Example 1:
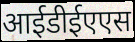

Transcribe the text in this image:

आईडीईएएस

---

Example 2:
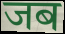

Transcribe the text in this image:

जब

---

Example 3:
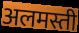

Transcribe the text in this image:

अलमस्ती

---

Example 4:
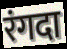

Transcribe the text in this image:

रंगदा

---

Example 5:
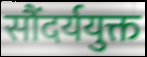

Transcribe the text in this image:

सौंदर्ययुक्त